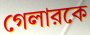
গেলারকে